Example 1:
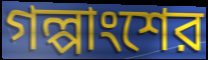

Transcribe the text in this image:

গল্পাংশের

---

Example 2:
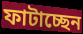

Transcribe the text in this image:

ফাটাচ্ছেন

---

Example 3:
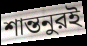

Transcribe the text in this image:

শান্তনুরই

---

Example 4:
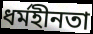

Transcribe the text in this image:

ধর্মহীনতা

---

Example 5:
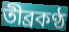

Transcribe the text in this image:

তীব্রকণ্ঠ